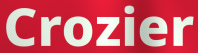
Crozier